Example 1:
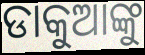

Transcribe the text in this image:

ଡାକୁଆଙ୍କୁ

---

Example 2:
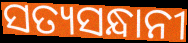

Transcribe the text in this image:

ସତ୍ୟସନ୍ଧାନୀ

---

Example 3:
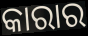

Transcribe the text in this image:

କାରାର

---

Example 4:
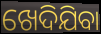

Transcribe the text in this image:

ଖେଦିଯିବା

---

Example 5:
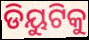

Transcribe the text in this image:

ଡିୟୁଟିକୁ